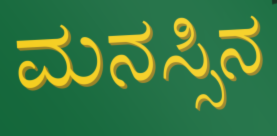
ಮನಸ್ಸಿನ